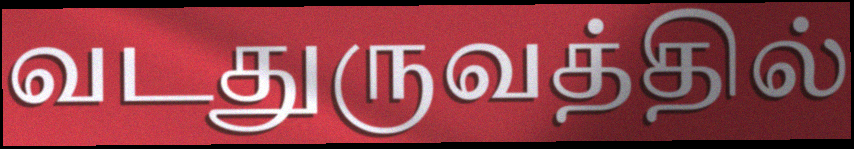
வடதுருவத்தில்